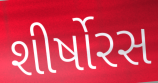
શીર્ષોરસ